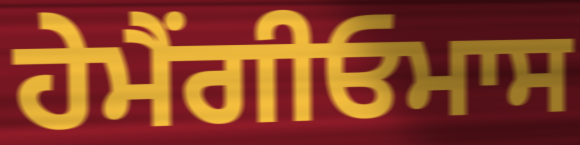
ਹੇਮੈਂਗੀਓਮਾਸ